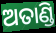
ଅତାଣ୍ଡି